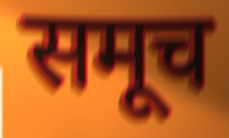
समूच